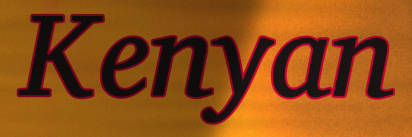
Kenyan